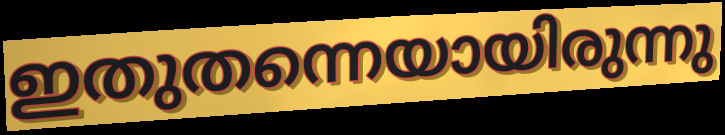
ഇതുതന്നെയായിരുന്നു